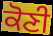
ਕੋਣੀ